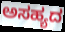
ಅಸಹ್ಯದ